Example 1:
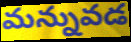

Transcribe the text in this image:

మన్నువడ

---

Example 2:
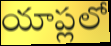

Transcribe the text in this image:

యాప్లలో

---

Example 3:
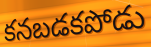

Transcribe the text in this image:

కనబడకపోడు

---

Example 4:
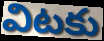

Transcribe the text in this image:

విటకు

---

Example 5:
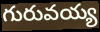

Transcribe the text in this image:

గురువయ్య